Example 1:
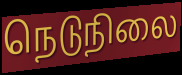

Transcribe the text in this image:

நெடுநிலை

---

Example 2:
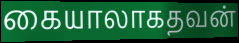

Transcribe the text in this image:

கையாலாகதவன்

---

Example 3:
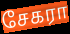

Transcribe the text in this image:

சேகரா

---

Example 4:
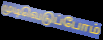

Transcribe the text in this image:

முடிவெடுப்போம்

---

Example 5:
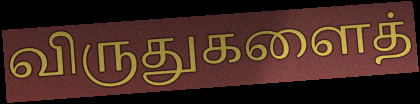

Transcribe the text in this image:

விருதுகளைத்